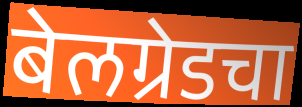
बेलग्रेडचा